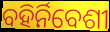
ବହିର୍ନିବେଶୀ